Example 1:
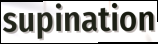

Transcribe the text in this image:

supination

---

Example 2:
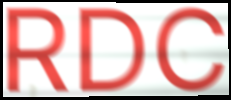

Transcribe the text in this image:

RDC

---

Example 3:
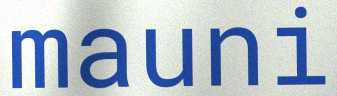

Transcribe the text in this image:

mauni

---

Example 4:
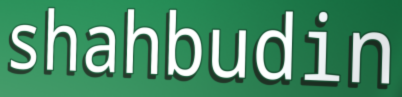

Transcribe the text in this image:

shahbudin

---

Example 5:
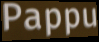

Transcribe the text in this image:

Pappu